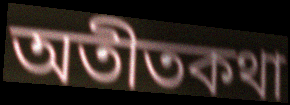
অতীতকথা